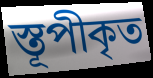
স্তূপীকৃত